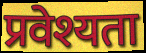
प्रवेश्यता